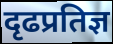
दृढप्रतिज्ञ